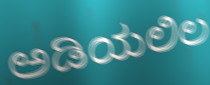
ಅಡಿಯಲಿಲ